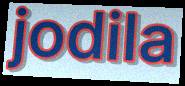
jodila